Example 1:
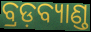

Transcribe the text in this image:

ବ୍ରଡ଼ବ୍ୟାଣ୍ଡ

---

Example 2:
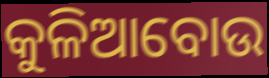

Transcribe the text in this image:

କୁଳିଆବୋଉ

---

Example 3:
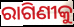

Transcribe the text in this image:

ରାଗିଣୀକୁ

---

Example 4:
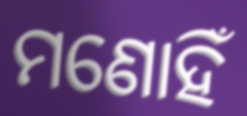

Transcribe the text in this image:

ମଣୋହିଁ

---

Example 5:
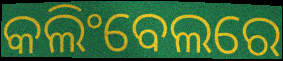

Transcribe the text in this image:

କଲିଂବେଲରେ